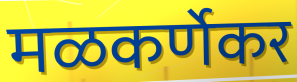
मळकर्णेकर